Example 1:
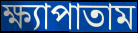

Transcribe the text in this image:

ক্ষ্যাপাতাম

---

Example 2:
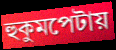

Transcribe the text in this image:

হুকুমপেটায়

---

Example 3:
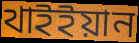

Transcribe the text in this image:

থাইইয়ান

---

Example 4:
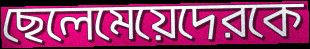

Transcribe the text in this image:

ছেলেমেয়েদেরকে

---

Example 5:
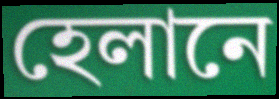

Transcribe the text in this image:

হেলানে